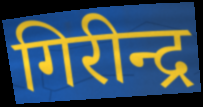
गिरीन्द्र